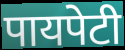
पायपेटी